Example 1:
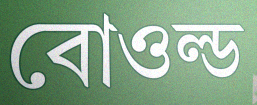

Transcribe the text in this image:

বোওল্ড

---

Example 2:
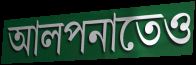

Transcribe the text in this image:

আলপনাতেও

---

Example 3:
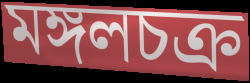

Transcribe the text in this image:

মঙ্গলচক্র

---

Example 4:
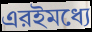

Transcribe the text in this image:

এরইমধ্যে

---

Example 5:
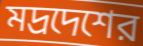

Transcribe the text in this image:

মদ্রদেশের